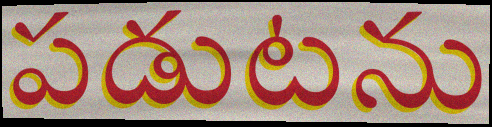
పడుటను